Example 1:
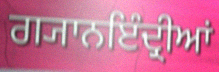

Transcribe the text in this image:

ਗ੍ਯਾਨਇੰਦ੍ਰੀਆਂ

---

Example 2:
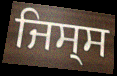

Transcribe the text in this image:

ਜਿਸ੍ਸ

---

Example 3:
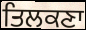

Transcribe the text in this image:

ਤਿਲਕਣਾ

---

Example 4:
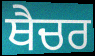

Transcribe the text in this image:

ਥੈਚਰ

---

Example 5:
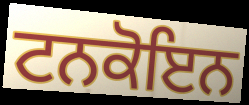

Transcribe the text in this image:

ਟਨਕੋਇਨ